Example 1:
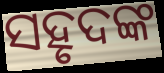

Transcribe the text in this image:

ସହୃଦଙ୍କ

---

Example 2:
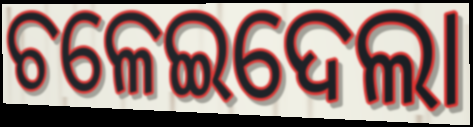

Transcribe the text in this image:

ଚଳେଇଦେଲା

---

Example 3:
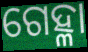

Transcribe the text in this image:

ଗେହ୍ଳା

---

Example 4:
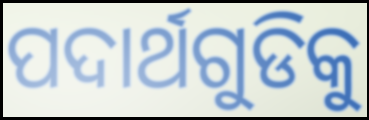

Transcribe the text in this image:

ପଦାର୍ଥଗୁଡିକୁ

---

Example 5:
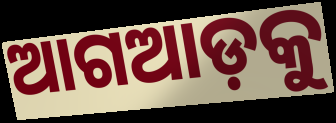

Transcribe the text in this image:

ଆଗଆଡ଼କୁ